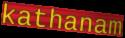
kathanam